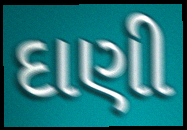
દાણી